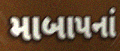
માબાપનાં